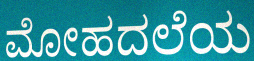
ಮೋಹದಲೆಯ